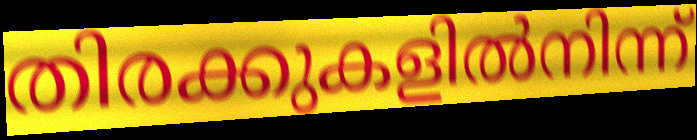
തിരക്കുകളിൽനിന്ന്